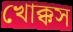
খোক্কস